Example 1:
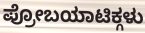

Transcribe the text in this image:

ಪ್ರೋಬಯಾಟಿಕ್ಗಳು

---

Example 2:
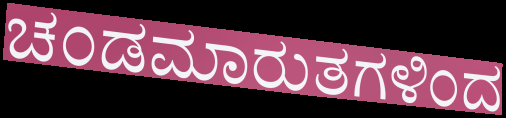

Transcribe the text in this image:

ಚಂಡಮಾರುತಗಳಿಂದ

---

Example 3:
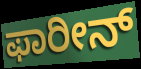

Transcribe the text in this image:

ಫಾರೀನ್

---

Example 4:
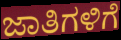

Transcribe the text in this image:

ಜಾತಿಗಳಿಗೆ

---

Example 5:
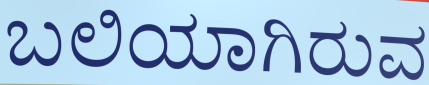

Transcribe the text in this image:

ಬಲಿಯಾಗಿರುವ